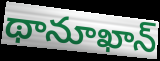
థానూఖాన్